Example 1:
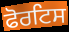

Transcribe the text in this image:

ਫੋਰਟਿਸ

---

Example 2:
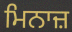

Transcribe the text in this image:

ਮਿਨਾਜ਼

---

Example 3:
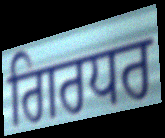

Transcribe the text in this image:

ਗਿਰਧਰ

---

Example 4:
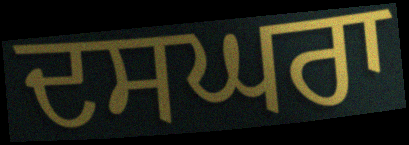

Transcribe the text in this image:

ਦਸਘਰਾ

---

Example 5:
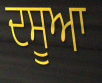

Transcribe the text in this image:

ਦਸੂਆ